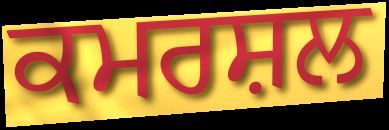
ਕਮਰਸ਼ਲ